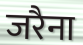
जरैना